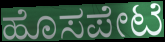
ಹೊಸಪೇಟೆ